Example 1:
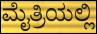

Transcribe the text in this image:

ಮೈತ್ರಿಯಲ್ಲಿ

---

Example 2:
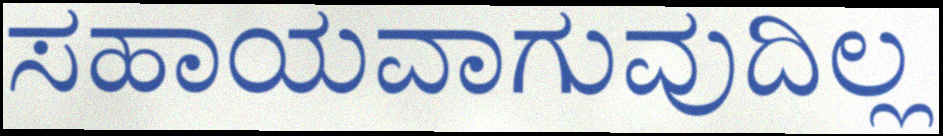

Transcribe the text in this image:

ಸಹಾಯವಾಗುವುದಿಲ್ಲ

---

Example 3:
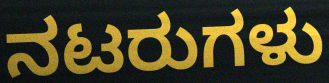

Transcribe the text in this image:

ನಟರುಗಳು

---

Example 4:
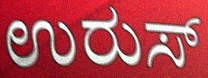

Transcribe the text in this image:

ಉರುಸ್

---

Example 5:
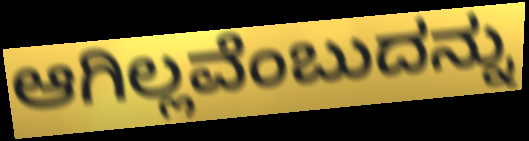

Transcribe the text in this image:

ಆಗಿಲ್ಲವೆಂಬುದನ್ನು